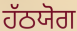
ਹੱਠਯੋਗ